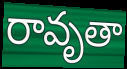
రావృతా